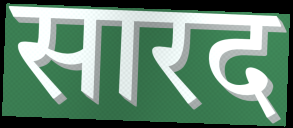
सारद